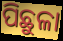
ପିଛୁଳା